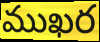
ముఖర